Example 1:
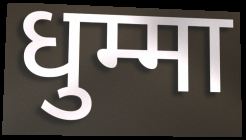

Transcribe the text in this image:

धुम्मा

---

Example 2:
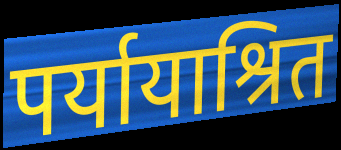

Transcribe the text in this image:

पर्यायाश्रित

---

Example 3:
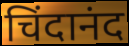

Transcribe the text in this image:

चिंदानंद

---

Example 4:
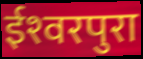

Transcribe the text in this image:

ईश्वरपुरा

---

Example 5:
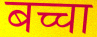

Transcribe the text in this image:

बच्‍चा